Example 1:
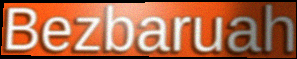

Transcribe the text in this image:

Bezbaruah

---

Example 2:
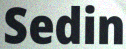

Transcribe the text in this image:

Sedin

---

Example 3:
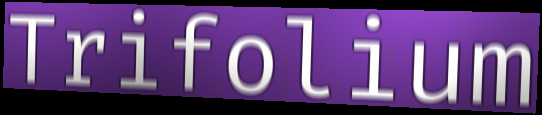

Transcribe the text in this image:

Trifolium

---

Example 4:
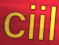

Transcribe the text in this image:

ciil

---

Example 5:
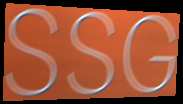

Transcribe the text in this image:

SSG